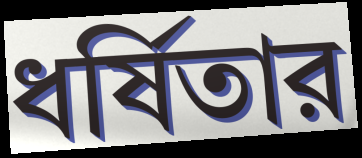
ধর্ষিতার